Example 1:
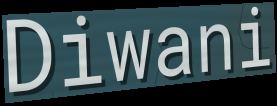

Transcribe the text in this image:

Diwani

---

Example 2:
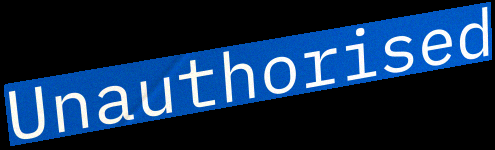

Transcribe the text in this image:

Unauthorised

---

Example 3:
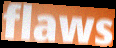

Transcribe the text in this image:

flaws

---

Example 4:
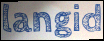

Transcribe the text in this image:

langid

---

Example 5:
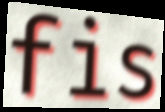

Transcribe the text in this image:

fis